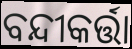
ବନ୍ଦୀକର୍ତ୍ତା